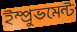
ইম্প্রুভমেন্ট